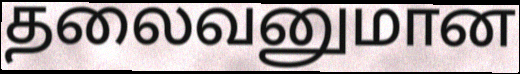
தலைவனுமான